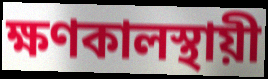
ক্ষণকালস্থায়ী